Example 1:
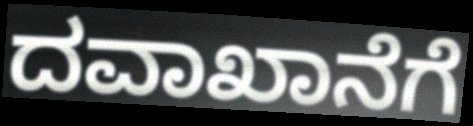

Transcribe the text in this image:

ದವಾಖಾನೆಗೆ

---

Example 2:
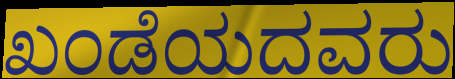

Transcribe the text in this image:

ಖಂಡೆಯದವರು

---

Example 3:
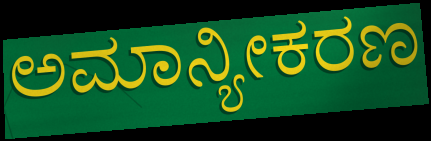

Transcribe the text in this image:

ಅಮಾನ್ಯೀಕರಣ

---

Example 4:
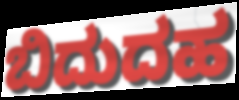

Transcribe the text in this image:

ಬಿದುದಹ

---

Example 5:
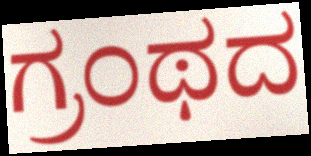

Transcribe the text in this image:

ಗ್ರಂಥದ